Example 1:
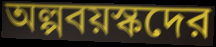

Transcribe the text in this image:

অল্পবয়স্কদের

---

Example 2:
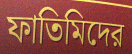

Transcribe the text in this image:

ফাতিমিদের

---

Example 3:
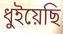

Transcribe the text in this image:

ধুইয়েছি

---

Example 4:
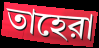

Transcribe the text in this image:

তাহেরা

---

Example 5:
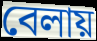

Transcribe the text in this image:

বেলায়